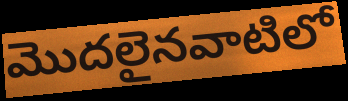
మొదలైనవాటిలో